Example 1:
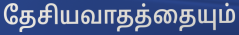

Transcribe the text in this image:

தேசியவாதத்தையும்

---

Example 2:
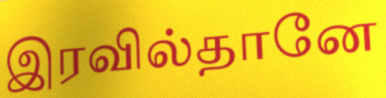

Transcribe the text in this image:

இரவில்தானே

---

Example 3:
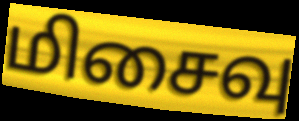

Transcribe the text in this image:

மிசைவு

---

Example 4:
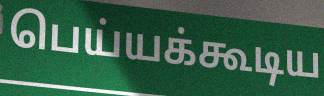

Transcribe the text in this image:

பெய்யக்கூடிய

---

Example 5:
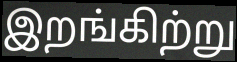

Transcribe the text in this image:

இறங்கிற்று